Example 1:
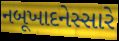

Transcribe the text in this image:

નબૂખાદનેસ્સારે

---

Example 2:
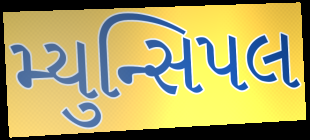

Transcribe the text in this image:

મ્યુન્સિપલ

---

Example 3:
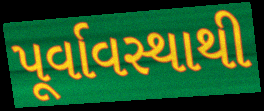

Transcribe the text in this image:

પૂર્વાવસ્થાથી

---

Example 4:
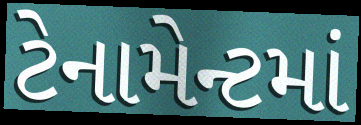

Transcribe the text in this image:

ટેનામેન્ટમાં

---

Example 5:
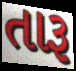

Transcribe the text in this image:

તારૂ